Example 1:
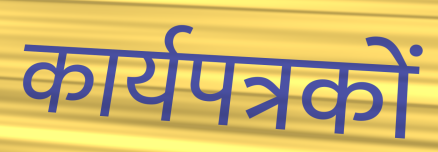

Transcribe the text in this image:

कार्यपत्रकों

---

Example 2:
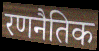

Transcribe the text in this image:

रणनैतिक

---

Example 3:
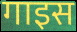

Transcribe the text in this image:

गाइस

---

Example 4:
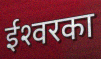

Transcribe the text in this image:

ईश्वरका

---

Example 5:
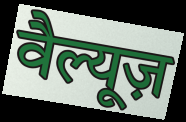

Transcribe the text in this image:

वैल्यूज़